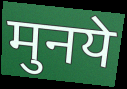
मुनये